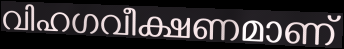
വിഹഗവീക്ഷണമാണ്